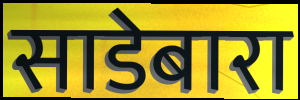
साडेबारा